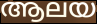
ആലയ